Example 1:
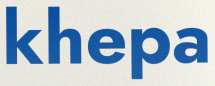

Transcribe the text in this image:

khepa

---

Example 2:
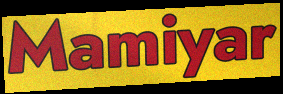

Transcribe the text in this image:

Mamiyar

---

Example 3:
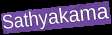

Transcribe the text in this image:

Sathyakama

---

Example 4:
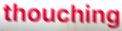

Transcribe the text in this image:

thouching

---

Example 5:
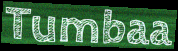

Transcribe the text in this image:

Tumbaa